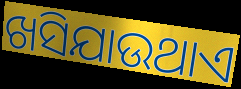
ଖସିଯାଉଥାଏ